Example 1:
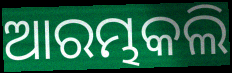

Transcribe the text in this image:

ଆରମ୍ଭକଲି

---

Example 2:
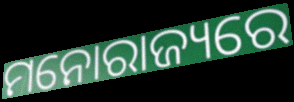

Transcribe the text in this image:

ମନୋରାଜ୍ୟରେ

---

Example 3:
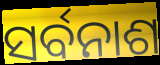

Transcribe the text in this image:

ସର୍ବନାଶ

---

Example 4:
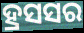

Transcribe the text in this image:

ହ୍ରସସର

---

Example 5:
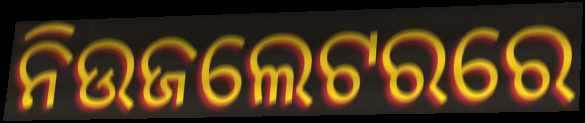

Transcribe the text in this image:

ନିଉଜଲେଟରରେ